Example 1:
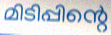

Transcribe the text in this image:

മിടിപ്പിന്റെ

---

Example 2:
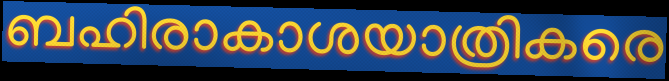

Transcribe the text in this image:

ബഹിരാകാശയാത്രികരെ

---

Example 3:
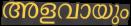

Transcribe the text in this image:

അളവായും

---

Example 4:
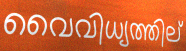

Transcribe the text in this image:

വൈവിധ്യത്തില്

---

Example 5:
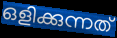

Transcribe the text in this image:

ഒളിക്കുന്നത്